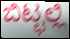
ಬಿಟ್ಟಲ್ಲಿ